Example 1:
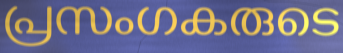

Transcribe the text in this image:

പ്രസംഗകരുടെ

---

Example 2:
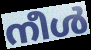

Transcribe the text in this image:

നീൾ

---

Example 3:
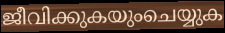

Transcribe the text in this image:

ജീവിക്കുകയുംചെയ്യുക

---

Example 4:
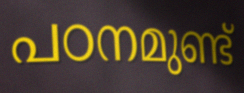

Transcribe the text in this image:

പഠനമുണ്ട്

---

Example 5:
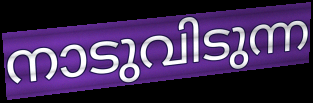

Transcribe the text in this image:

നാടുവിടുന്ന